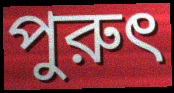
পুরুৎ